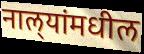
नाल्यांमधील